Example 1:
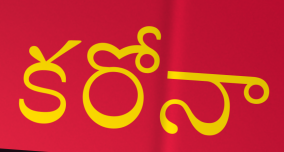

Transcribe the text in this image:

కరోనా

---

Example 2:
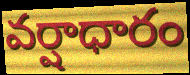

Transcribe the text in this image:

వర్షాధారం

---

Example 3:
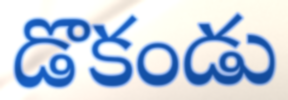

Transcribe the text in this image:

డొకండు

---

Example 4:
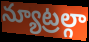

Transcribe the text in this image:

న్యూట్రల్గా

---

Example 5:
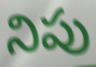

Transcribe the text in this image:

నిపు